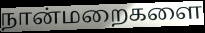
நான்மறைகளை